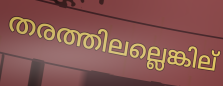
തരത്തിലല്ലെങ്കില്